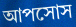
আপসোস